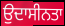
ਉਦਾਸੀਨਤਾ